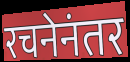
रचनेनंतर